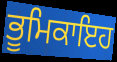
ਭੂਮਿਕਾਇਹ